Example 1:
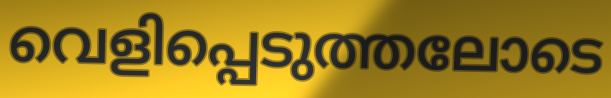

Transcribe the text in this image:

വെളിപ്പെടുത്തലോടെ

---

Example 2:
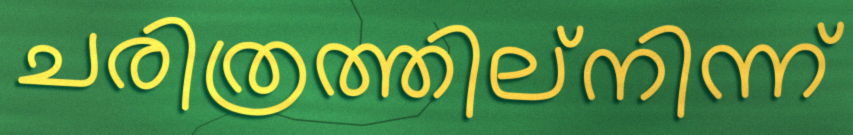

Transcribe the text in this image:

ചരിത്രത്തില്നിന്ന്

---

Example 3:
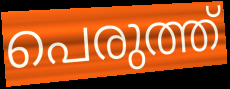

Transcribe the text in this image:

പെരുത്ത്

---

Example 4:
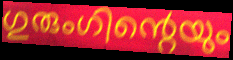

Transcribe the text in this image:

ഗുരുംഗിന്റെയും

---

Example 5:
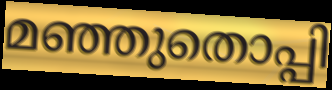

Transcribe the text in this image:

മഞ്ഞുതൊപ്പി